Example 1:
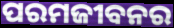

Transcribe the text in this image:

ପରମଜୀବନର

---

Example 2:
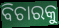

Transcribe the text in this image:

ବିଚାରକୁ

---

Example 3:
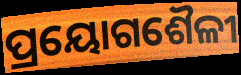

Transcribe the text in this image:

ପ୍ରୟୋଗଶୈଳୀ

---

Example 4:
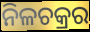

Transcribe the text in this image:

ନିଳଚକ୍ରର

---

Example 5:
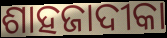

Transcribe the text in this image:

ଶାହଜାଦୀକା